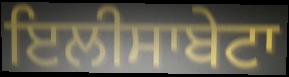
ਇਲੀਸਾਬੇਟਾ